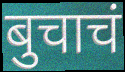
बुचाचं